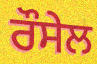
ਰੌਸੇਲ